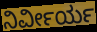
ನಿರ್ವೀರ್ಯ